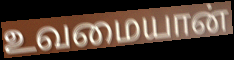
உவமையான்